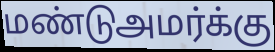
மண்டுஅமர்க்கு